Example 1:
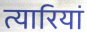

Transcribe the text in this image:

त्यारियां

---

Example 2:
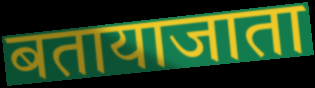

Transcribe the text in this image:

बतायाजाता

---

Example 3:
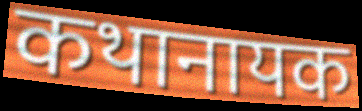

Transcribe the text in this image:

कथानायक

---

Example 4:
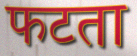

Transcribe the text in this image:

फटता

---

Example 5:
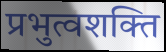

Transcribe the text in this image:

प्रभुत्वशक्ति